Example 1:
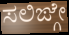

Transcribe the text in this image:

ಸಲಿಙ್ಗೇ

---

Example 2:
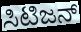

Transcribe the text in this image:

ಸಿಟಿಜನ್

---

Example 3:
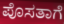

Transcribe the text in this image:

ಪೊಸತಾಗೆ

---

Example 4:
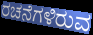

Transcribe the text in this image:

ರಚನೆಗಳಿರುವ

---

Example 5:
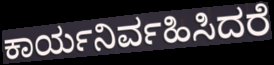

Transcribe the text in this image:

ಕಾರ್ಯನಿರ್ವಹಿಸಿದರೆ